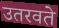
उतरवते